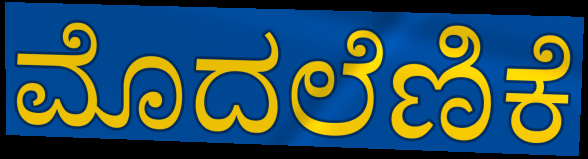
ಮೊದಲೆಣಿಕೆ